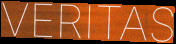
VERITAS